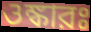
ওঙ্কারঃ